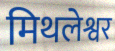
मिथलेश्वर